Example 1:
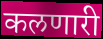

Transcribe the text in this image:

कलणारी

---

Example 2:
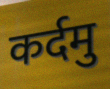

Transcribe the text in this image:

कर्दमु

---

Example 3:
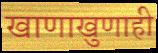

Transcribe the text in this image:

खाणाखुणाही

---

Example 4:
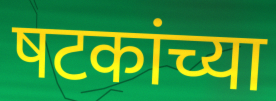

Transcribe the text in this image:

षटकांच्या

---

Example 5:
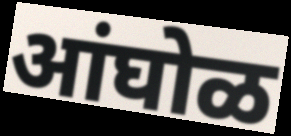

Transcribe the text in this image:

आंघोळ